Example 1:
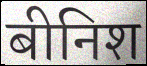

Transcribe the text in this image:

बीनिश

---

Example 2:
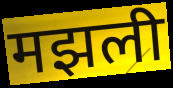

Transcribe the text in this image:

मझली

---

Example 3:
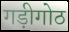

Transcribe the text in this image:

गड़ीगोठ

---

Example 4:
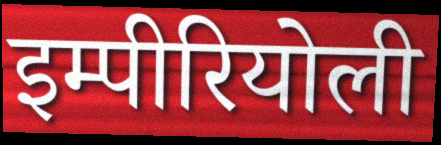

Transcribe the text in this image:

इम्पीरियोली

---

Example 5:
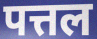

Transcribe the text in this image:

पत्तल